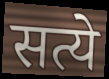
सत्ये